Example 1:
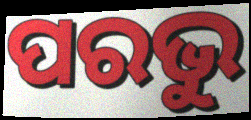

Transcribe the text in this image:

ପରଭୁ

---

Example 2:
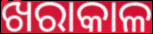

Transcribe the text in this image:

ଖରାକାଳ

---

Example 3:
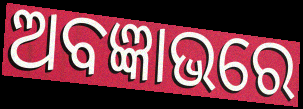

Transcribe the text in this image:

ଅବଜ୍ଞାଭରେ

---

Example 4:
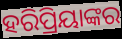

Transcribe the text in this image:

ହରିପ୍ରିୟାଙ୍କର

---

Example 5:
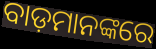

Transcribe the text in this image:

ବାଡ଼ମାନଙ୍କରେ